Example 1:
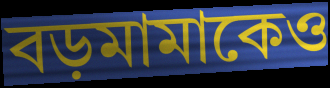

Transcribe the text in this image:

বড়মামাকেও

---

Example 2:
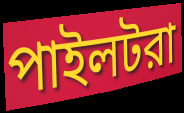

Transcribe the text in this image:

পাইলটরা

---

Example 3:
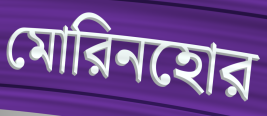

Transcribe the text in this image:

মোরিনহোর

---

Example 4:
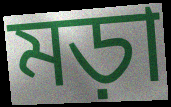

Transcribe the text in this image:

মড়া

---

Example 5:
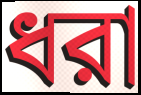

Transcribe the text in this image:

ধরা